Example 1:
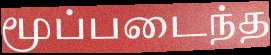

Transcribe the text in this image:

மூப்படைந்த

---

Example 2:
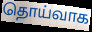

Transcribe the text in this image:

தொய்வாக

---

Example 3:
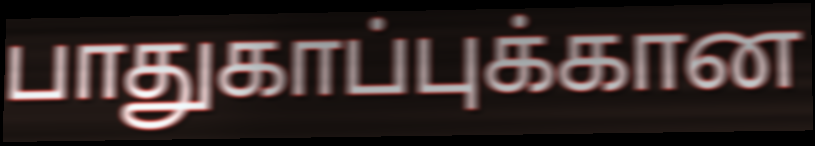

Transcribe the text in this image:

பாதுகாப்புக்கான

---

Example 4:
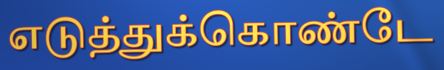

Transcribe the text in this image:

எடுத்துக்கொண்டே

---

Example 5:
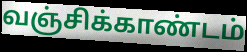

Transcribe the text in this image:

வஞ்சிக்காண்டம்